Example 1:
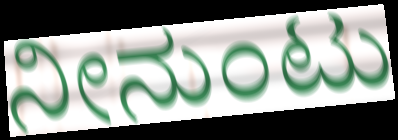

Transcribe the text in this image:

ನೀನುಂಟು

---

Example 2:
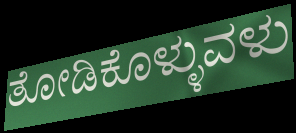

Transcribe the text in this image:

ತೋಡಿಕೊಳ್ಳುವಳು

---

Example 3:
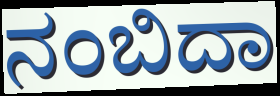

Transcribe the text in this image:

ನಂಬಿದಾ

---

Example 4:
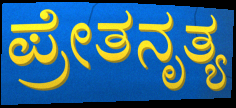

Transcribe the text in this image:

ಪ್ರೇತನೃತ್ಯ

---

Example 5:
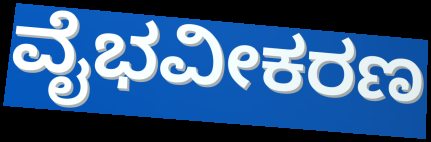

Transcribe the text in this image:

ವೈಭವೀಕರಣ